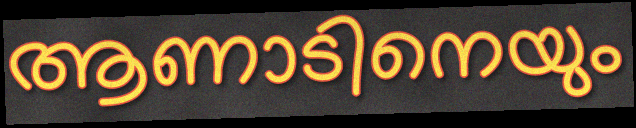
ആണാടിനെയും